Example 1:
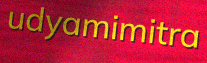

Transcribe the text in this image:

udyamimitra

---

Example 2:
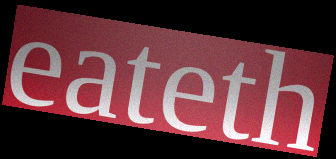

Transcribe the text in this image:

eateth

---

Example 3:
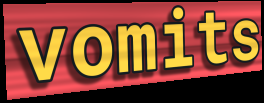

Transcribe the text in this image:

vomits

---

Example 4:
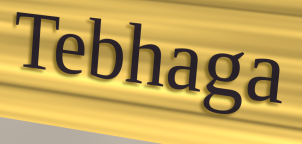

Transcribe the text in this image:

Tebhaga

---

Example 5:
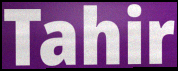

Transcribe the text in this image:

Tahir